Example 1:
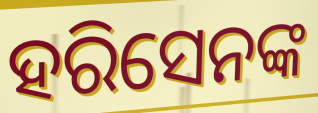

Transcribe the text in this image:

ହରିସେନଙ୍କ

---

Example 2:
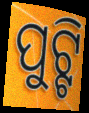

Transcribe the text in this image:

ପୁଟ୍ଟି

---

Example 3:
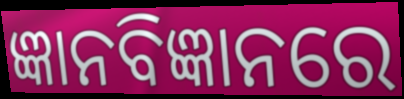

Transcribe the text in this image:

ଜ୍ଞାନବିଜ୍ଞାନରେ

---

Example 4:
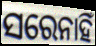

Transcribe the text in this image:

ସରେନାହିଁ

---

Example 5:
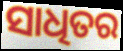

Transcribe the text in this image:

ସାଧିତର